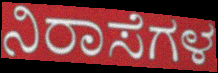
ನಿರಾಸೆಗಳ